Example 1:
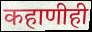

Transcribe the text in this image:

कहाणीही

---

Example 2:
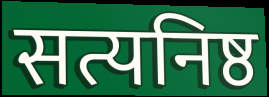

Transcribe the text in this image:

सत्यनिष्ठ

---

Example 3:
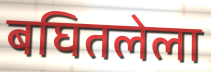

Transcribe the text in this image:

बघितलेला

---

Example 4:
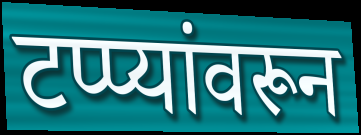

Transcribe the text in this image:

टप्प्यांवरून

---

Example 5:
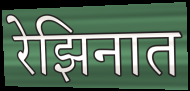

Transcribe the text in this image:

रेझिनात